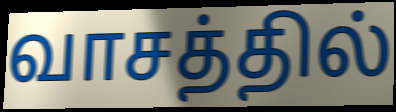
வாசத்தில்